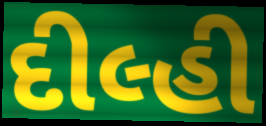
દીલ્હી